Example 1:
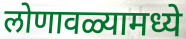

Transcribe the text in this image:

लोणावळ्यामध्ये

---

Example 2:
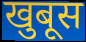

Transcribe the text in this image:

खुबूस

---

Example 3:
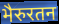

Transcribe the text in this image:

भैरुरतन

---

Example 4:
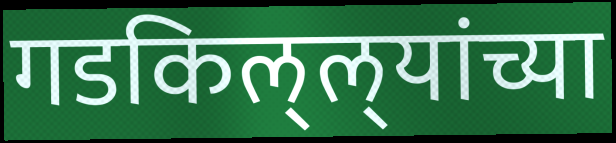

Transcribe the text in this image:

गडकिल्ल्यांच्या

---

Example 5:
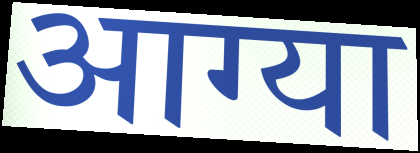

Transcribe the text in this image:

आग्या